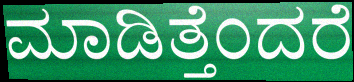
ಮಾಡಿತ್ತೆಂದರೆ